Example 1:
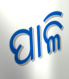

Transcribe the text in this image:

ପାଳି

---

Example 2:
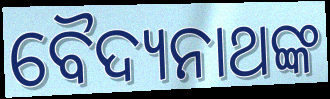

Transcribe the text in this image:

ବୈଦ୍ୟନାଥଙ୍କ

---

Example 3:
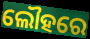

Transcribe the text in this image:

ଲୌହରେ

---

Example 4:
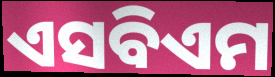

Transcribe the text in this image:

ଏସବିଏମ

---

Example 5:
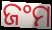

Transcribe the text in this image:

ଜଂମ